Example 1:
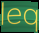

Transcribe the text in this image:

leq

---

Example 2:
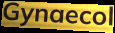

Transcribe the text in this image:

Gynaecol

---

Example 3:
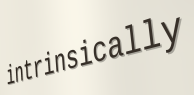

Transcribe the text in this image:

intrinsically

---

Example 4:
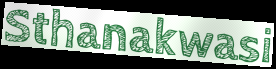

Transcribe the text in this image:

Sthanakwasi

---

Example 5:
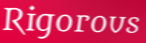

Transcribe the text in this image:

Rigorous